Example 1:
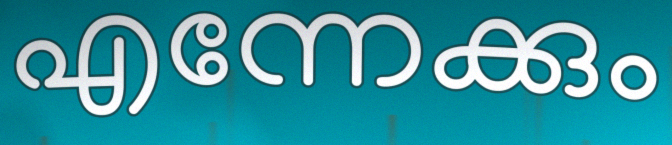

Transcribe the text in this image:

എന്നേക്കും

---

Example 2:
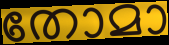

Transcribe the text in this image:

തോമാ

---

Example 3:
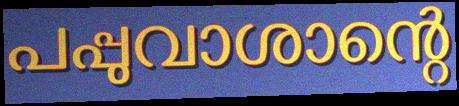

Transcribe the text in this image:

പപ്പുവാശാന്റെ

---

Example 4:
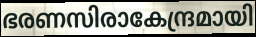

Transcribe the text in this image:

ഭരണസിരാകേന്ദ്രമായി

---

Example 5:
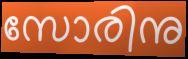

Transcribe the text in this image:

സോരിനു